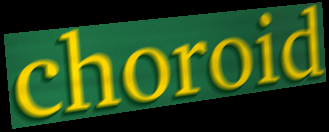
choroid